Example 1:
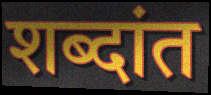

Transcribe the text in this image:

शब्दांत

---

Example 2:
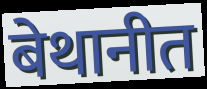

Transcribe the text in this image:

बेथानीत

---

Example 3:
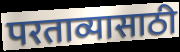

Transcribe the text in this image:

परताव्यासाठी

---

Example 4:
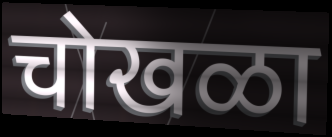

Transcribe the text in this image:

चोखळा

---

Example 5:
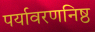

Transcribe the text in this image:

पर्यावरणनिष्ठ